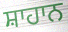
ਸ਼ਾਹਾਨ